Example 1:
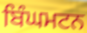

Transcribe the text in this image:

ਬਿੰਘਮਟਨ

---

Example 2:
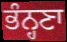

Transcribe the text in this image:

ਭੰਨ੍ਹਣਾ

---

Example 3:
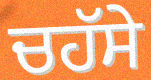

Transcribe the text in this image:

ਚਹੱਸੇ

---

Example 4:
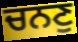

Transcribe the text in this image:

ਚਨਣੁ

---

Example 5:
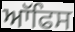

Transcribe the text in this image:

ਆੱਫਿਸ